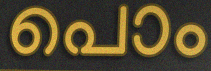
പൊം